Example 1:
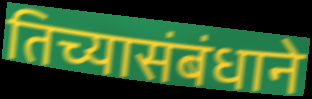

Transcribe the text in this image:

तिच्यासंबंधाने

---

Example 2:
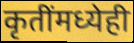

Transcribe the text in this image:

कृतींमध्येही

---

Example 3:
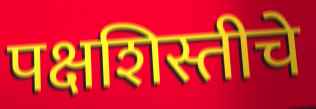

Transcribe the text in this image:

पक्षशिस्तीचे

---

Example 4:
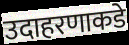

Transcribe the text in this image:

उदाहरणाकडे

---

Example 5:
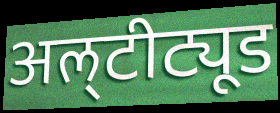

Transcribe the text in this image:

अल्टीट्यूड